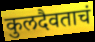
कुलदैवताचं